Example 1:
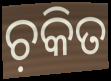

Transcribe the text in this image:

ଚ଼କିତ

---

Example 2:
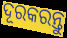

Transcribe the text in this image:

ଦୂରକରନ୍ତୁ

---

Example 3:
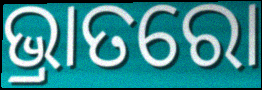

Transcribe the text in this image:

ଭ୍ରାତରୋ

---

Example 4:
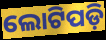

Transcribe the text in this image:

ଲୋଟିପଡ଼ି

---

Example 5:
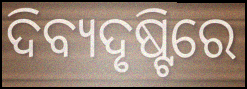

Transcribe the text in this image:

ଦିବ୍ୟଦୃଷ୍ଟିରେ